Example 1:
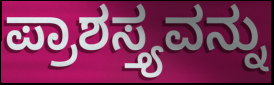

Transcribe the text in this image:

ಪ್ರಾಶಸ್ತ್ಯವನ್ನು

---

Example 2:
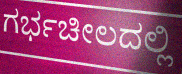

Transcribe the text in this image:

ಗರ್ಭಚೀಲದಲ್ಲಿ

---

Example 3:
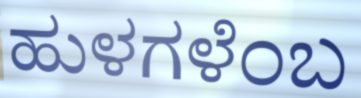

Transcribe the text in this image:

ಹುಳಗಳೆಂಬ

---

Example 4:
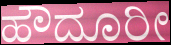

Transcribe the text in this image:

ಹೌದೂರೀ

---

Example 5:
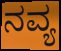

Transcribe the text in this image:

ನವ್ಯ